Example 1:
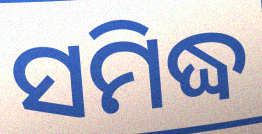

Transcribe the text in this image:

ସମିଦ୍ଧ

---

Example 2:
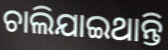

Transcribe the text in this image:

ଚାଲିଯାଇଥାନ୍ତି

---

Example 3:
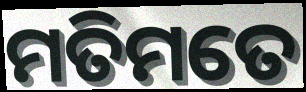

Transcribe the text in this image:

ମତିମତେ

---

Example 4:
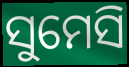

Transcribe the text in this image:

ସୁମେସି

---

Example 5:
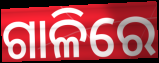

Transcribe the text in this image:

ଗାଳିରେ